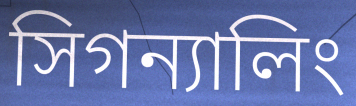
সিগন্যালিং